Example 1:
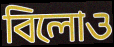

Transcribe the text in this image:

বিলোও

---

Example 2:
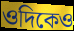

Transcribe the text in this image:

ওদিকেও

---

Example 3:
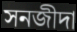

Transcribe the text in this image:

সনজীদা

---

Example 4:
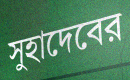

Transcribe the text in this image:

সুহাদেবের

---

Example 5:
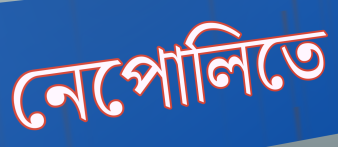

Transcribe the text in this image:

নেপোলিতে